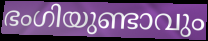
ഭംഗിയുണ്ടാവും